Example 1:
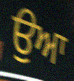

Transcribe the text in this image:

ਉਆ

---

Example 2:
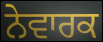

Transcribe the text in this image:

ਨੇਵਾਰਕ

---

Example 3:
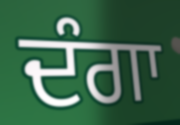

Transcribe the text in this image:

ਦੰਗਾ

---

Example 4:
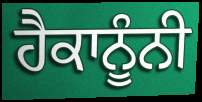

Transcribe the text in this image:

ਹੈਕਾਨੂੰਨੀ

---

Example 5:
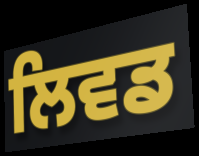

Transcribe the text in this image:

ਲਿਵਡ